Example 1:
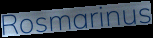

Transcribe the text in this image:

Rosmarinus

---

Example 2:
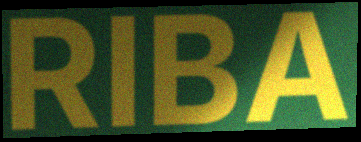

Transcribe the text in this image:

RIBA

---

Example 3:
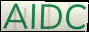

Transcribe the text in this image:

AIDC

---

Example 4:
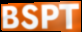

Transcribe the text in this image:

BSPT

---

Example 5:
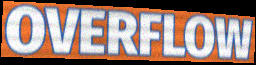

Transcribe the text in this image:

OVERFLOW